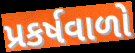
પ્રકર્ષવાળો